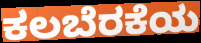
ಕಲಬೆರಕೆಯ